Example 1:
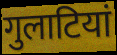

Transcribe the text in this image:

गुलाटियां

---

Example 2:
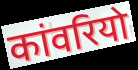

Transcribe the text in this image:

कांवरियो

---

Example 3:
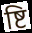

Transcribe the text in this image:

ष्टि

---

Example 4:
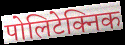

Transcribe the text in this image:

पोलिटेक्निक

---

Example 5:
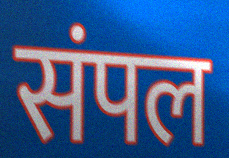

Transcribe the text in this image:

संपल